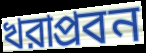
খরাপ্রবন